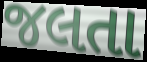
જલતા